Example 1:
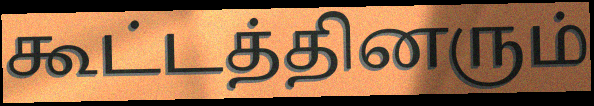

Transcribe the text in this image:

கூட்டத்தினரும்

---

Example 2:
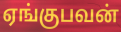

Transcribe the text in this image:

ஏங்குபவன்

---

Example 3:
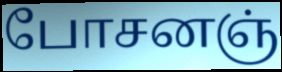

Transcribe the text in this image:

போசனஞ்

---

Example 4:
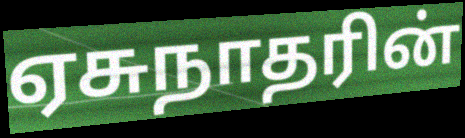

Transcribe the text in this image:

ஏசுநாதரின்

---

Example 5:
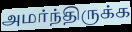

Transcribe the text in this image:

அமர்ந்திருக்க